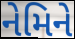
નેમિને